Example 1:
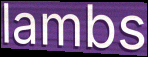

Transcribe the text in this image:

lambs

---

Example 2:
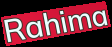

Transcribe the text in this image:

Rahima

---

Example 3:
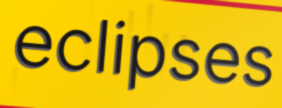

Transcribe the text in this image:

eclipses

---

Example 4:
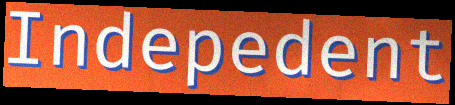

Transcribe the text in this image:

Indepedent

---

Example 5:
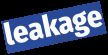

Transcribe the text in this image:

leakage